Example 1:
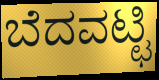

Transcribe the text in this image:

ಬೆದವಟ್ಟಿ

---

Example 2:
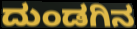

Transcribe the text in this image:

ದುಂಡಗಿನ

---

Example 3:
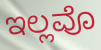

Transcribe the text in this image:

ಇಲ್ಲವೊ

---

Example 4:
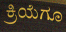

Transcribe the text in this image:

ಕ್ರಿಯೆಗೂ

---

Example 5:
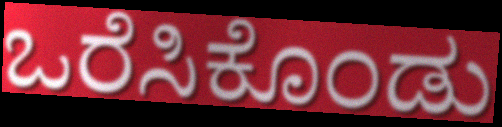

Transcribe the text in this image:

ಒರೆಸಿಕೊಂಡು